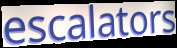
escalators